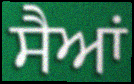
ਸੈਆਂ